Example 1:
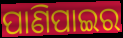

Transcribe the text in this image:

ପାଣିପାଇର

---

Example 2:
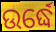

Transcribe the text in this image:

ଉର୍ଦ୍ଧେ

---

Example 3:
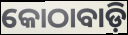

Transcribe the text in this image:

କୋଠାବାଡ଼ି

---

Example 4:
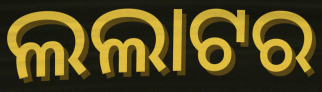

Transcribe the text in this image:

ଲଲାଟର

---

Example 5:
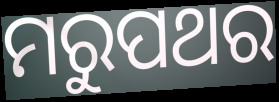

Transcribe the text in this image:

ମରୁପଥର